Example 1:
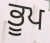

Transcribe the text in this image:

ਭੂਪ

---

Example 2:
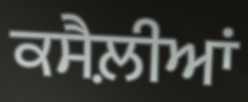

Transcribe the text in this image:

ਕਸੈਲ਼ੀਆਂ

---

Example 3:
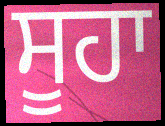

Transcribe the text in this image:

ਸੂਹਾ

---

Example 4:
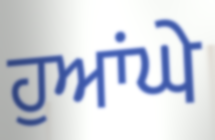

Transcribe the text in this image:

ਹੁਆਂਘੇ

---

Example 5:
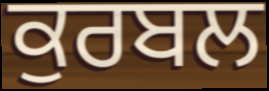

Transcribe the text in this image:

ਕੁਰਬਲ